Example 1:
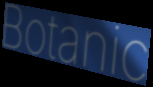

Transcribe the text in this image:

Botanic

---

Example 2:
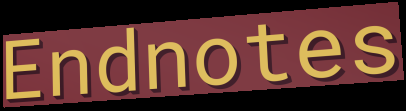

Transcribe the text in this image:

Endnotes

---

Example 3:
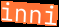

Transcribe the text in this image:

inni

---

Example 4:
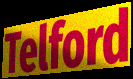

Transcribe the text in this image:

Telford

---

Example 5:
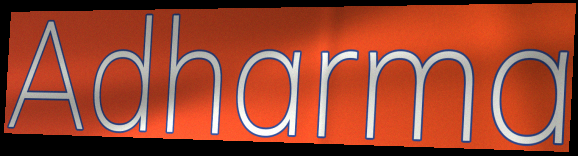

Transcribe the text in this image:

Adharma